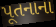
પૂતનાના